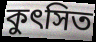
কুৎসিত